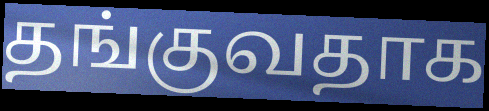
தங்குவதாக